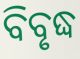
ବିବୃଦ୍ଧ